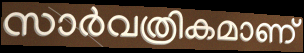
സാർവത്രികമാണ്